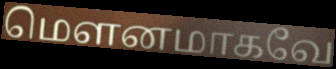
மெளனமாகவே